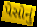
પેસોનું